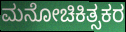
ಮನೋಚಿಕಿತ್ಸಕರ